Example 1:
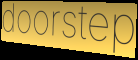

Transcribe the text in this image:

doorstep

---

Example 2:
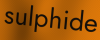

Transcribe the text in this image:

sulphide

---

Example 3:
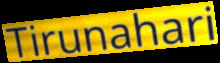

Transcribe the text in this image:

Tirunahari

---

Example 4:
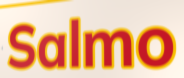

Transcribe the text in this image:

Salmo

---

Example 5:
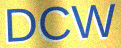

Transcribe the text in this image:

DCW